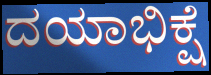
ದಯಾಭಿಕ್ಷೆ